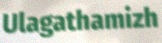
Ulagathamizh